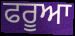
ਫਰੂਆ